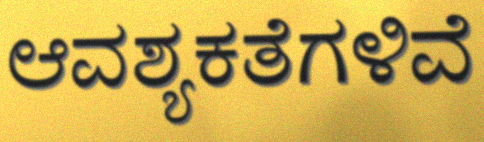
ಆವಶ್ಯಕತೆಗಳಿವೆ